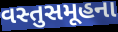
વસ્તુસમૂહના